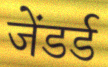
जेंडर्ड